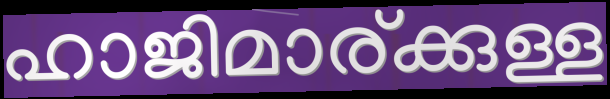
ഹാജിമാര്ക്കുള്ള